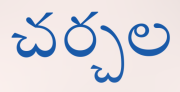
చర్చల